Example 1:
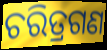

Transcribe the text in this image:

ଚରିତ୍ରଗଣ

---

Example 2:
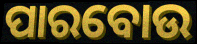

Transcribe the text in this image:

ପାରବୋଉ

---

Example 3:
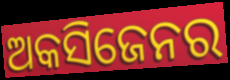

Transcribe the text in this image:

ଅକସିଜେନର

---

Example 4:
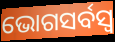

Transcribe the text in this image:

ଭୋଗସର୍ବସ୍ୱ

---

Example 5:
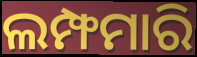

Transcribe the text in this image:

ଲମ୍ଫମାରି